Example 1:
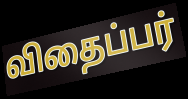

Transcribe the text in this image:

விதைப்பர்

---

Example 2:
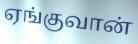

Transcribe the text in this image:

ஏங்குவான்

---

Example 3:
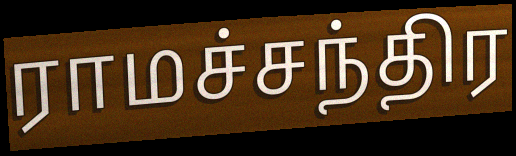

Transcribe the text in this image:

ராமச்சந்திர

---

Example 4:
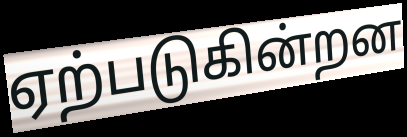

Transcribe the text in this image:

ஏற்படுகின்றன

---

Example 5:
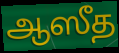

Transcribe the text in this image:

ஆஸீத